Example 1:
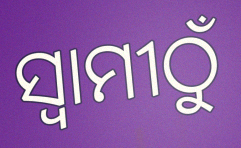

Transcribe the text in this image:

ସ୍ୱାମୀଠୁଁ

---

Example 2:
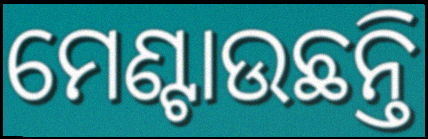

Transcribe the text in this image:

ମେଣ୍ଟାଉଛନ୍ତି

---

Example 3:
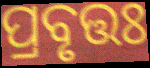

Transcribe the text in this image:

ପ୍ରବୃତ୍ତଃ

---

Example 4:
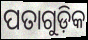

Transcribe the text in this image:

ପତାଗୁଡ଼ିକ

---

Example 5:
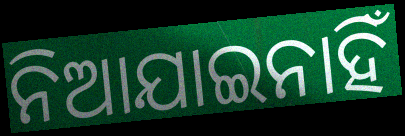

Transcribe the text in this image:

ନିଆଯାଇନାହିଁ